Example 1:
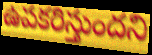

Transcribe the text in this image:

ఉపకరిస్తుందని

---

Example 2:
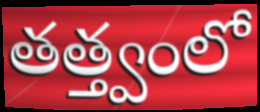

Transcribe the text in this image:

తత్త్వంలో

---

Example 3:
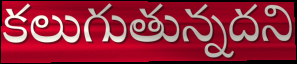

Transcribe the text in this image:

కలుగుతున్నదని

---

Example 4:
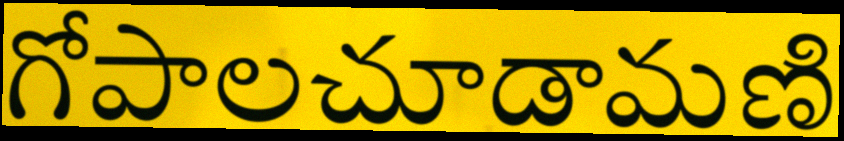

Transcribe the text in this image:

గోపాలచూడామణి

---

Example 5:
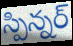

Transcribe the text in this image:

స్పిన్నర్